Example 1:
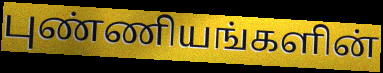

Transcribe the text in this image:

புண்ணியங்களின்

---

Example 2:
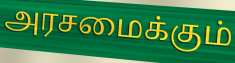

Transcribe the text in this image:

அரசமைக்கும்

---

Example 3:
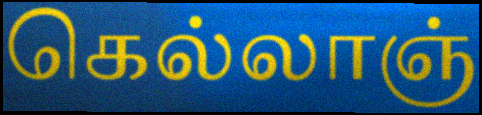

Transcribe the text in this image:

கெல்லாஞ்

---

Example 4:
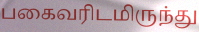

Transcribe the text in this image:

பகைவரிடமிருந்து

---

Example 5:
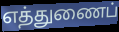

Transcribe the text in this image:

எத்துணைப்